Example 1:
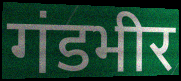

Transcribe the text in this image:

गंडभीर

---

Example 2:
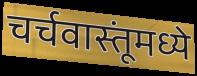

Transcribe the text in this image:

चर्चवास्तूंमध्ये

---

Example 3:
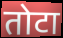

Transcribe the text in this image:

तोटा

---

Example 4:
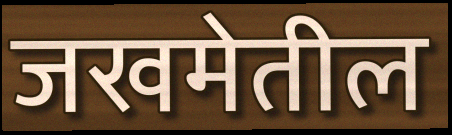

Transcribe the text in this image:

जखमेतील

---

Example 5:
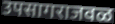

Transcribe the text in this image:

उपसागराजवळ